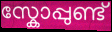
സ്കോപ്പുണ്ട്